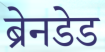
ब्रेनडेड